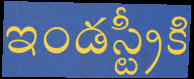
ఇండస్ట్రీకి